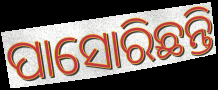
ପାସୋରିଛନ୍ତି